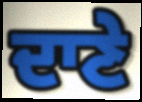
ਦਾਣੇ